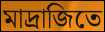
মাদ্রাজিতে